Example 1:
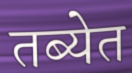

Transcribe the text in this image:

तब्येत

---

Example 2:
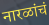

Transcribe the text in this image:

नारळांचं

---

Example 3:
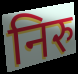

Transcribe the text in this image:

निरु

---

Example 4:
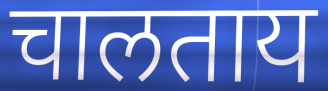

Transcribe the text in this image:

चालताय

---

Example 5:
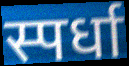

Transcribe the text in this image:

स्पर्धा